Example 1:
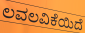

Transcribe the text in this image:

ಲವಲವಿಕೆಯಿದೆ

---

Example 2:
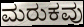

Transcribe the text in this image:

ಮರುಕವು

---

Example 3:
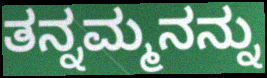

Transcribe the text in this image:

ತನ್ನಮ್ಮನನ್ನು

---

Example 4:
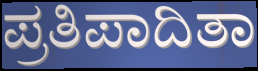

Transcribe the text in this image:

ಪ್ರತಿಪಾದಿತಾ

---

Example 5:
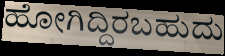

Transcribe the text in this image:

ಹೋಗಿದ್ದಿರಬಹುದು